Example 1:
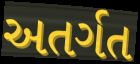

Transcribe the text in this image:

અતર્ગત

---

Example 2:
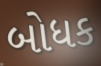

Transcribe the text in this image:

બોધક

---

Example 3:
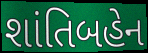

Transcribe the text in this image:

શાંતિબહેન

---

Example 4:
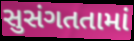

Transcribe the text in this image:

સુસંગતતામાં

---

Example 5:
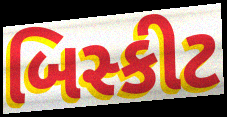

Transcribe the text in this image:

બિસ્કીટ